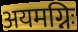
अयमग्निः